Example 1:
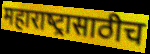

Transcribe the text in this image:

महाराष्ट्रासाठीच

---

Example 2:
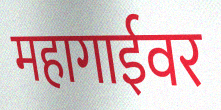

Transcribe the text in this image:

महागाईवर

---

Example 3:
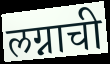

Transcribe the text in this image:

लग्नाची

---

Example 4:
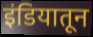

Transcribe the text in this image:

इंडियातून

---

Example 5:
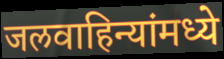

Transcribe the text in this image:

जलवाहिन्यांमध्ये